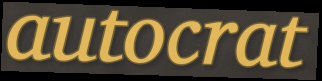
autocrat